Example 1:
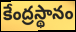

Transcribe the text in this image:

కేంద్రస్థానం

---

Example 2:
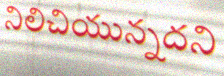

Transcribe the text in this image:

నిలిచియున్నదని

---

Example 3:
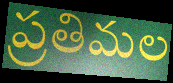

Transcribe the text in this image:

ప్రతిమల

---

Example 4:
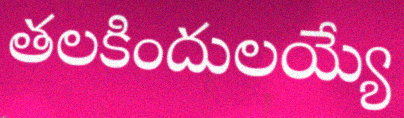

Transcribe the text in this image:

తలకిందులయ్యే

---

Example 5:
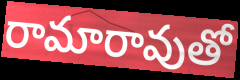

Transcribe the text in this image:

రామారావుతో